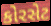
કોરસેટ